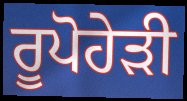
ਰੂਪੋਹੇੜੀ